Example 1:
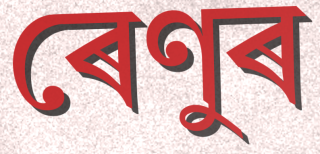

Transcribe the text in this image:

ৰেণুৰ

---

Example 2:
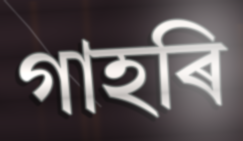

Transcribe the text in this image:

গাহৰি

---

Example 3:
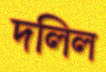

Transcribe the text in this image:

দলিল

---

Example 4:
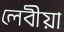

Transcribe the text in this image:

লেবীয়া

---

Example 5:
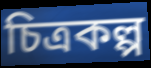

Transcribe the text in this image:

চিত্ৰকল্প